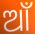
ଆଁ